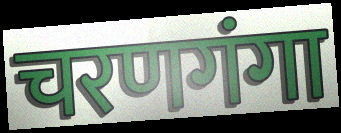
चरणगंगा